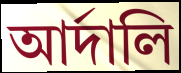
আর্দালি